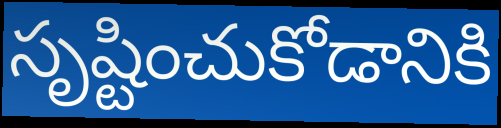
సృష్టించుకోడానికి